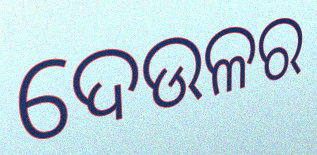
ଦେଉଳର